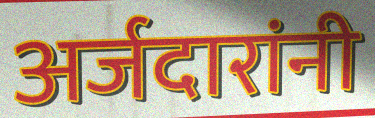
अर्जदारांनी